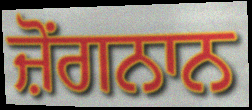
ਜ਼ੋਂਗਨਾਨ